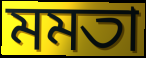
মমতা